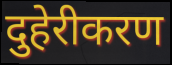
दुहेरीकरण